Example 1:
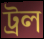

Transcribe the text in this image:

ট্রল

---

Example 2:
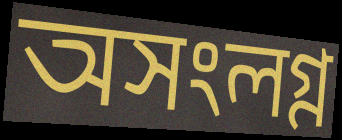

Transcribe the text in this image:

অসংলগ্ন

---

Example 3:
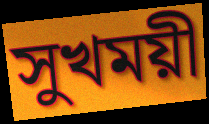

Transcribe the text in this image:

সুখময়ী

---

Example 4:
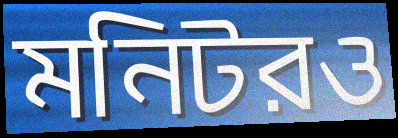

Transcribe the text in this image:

মনিটরও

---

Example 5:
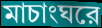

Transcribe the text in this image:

মাচাংঘরে